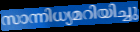
സാന്നിധ്യമറിയിച്ചു